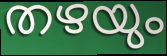
തഴയും